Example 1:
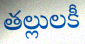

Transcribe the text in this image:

తల్లులకీ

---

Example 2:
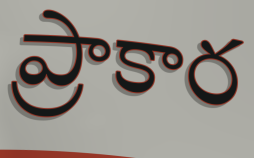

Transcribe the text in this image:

ప్రాకార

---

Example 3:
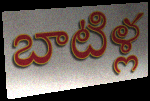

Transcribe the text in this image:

బాటిళ్ల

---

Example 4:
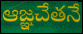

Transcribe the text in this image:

ఆజ్ఞచేతనే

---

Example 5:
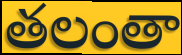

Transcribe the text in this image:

తలంతా